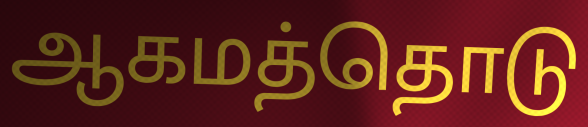
ஆகமத்தொடு